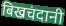
बिखचंदानी